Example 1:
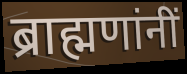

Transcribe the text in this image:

ब्राह्मणांनीं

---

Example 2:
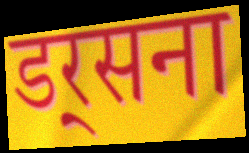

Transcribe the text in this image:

डर्सना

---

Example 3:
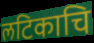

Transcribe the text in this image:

लटिकाचि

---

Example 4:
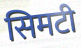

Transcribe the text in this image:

सिमटी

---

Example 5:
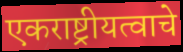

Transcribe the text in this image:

एकराष्ट्रीयत्वाचे